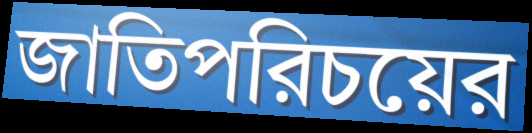
জাতিপরিচয়ের